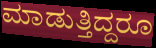
ಮಾಡುತ್ತಿದ್ದರೂ